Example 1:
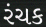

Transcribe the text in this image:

રંચક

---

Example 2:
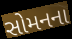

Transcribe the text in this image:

સોમનના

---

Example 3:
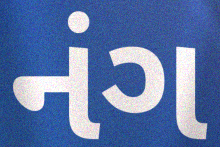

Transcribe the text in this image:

નંગ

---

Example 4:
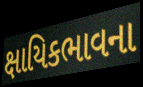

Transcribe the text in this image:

ક્ષાયિકભાવના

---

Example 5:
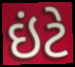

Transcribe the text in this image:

ઇંટે